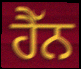
ਹੈੱਨ